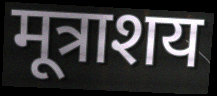
मूत्राशय